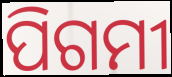
ପିଗମୀ